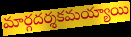
మార్గదర్శకమయ్యాయి